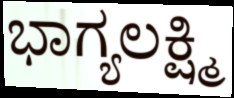
ಭಾಗ್ಯಲಕ್ಷ್ಮಿ